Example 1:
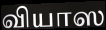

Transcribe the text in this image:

வியாஸ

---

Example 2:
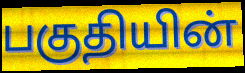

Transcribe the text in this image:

பகுதியின்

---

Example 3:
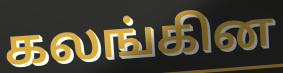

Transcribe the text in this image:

கலங்கின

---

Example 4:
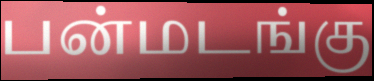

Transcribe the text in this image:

பன்மடங்கு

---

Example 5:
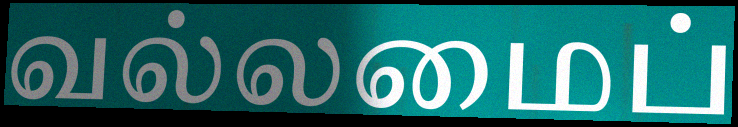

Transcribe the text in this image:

வல்லமைப்